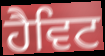
ਹੈਵਿਟ